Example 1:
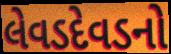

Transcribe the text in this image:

લેવડદેવડનો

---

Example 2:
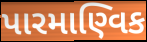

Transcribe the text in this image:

પારમાણ્વિક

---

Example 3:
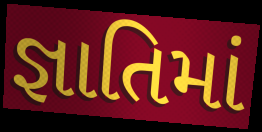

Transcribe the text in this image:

જ્ઞાતિમાં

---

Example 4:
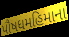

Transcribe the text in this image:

પૌષધમહિમાના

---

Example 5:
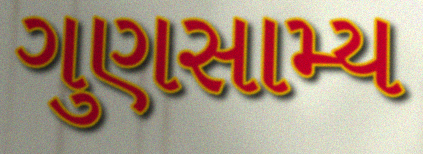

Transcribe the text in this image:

ગુણસામ્ય